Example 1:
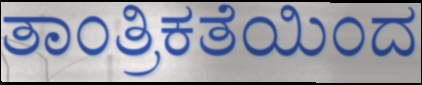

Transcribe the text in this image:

ತಾಂತ್ರಿಕತೆಯಿಂದ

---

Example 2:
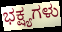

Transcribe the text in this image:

ಭಕ್ಷ್ಯಗಳು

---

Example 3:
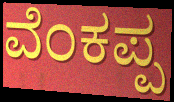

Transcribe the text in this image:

ವೆಂಕಪ್ಪ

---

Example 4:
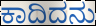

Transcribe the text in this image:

ಕಾದಿದನು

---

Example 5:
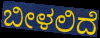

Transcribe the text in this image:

ಬೀಳಲಿದೆ